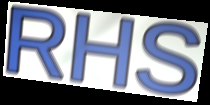
RHS